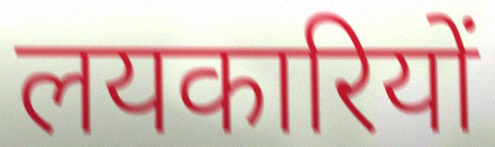
लयकारियों